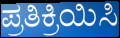
ಪ್ರತಿಕ್ರಿಯಿಸಿ